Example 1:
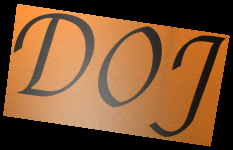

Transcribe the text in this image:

DOJ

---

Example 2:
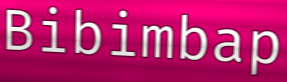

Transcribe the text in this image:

Bibimbap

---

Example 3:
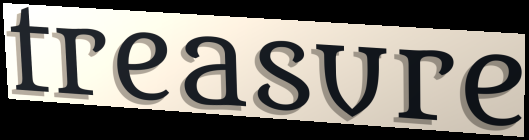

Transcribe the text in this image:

treasure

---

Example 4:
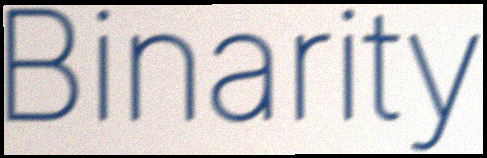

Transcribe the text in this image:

Binarity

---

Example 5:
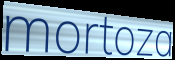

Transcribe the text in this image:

mortoza